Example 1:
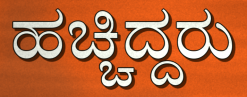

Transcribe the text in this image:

ಹಚ್ಚಿದ್ದರು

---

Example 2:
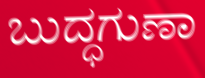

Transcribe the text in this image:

ಬುದ್ಧಗುಣಾ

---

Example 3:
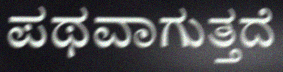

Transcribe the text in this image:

ಪಥವಾಗುತ್ತದೆ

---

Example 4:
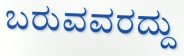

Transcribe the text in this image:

ಬರುವವರದ್ದು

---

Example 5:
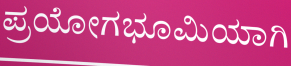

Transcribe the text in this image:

ಪ್ರಯೋಗಭೂಮಿಯಾಗಿ